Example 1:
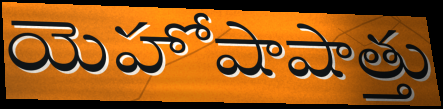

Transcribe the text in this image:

యెహోషాషాత్తు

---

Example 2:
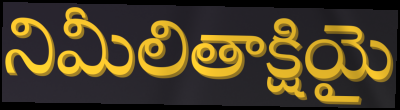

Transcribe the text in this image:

నిమీలితాక్షియై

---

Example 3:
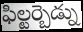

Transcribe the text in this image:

ఫిల్టర్బెడ్ను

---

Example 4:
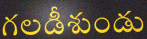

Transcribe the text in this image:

గలడీశుండు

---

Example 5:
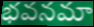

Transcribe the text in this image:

భవనమా